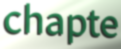
chapte